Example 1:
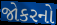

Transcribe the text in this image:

જોકરનો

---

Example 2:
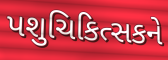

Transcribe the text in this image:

પશુચિકિત્સકને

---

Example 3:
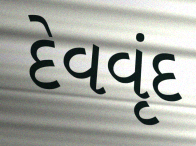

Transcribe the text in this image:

દેવવૃંદ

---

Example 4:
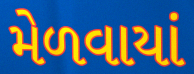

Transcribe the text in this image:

મેળવાયાં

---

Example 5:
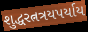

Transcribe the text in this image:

શુદ્ધરત્નત્રયપર્યાય